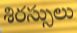
శిరస్సులు